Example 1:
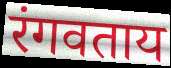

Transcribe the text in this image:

रंगवताय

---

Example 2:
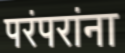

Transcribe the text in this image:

परंपरांना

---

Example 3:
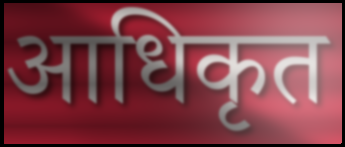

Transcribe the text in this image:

आधिकृत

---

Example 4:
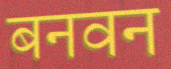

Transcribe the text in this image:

बनवन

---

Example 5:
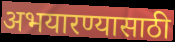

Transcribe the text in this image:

अभयारण्यासाठी